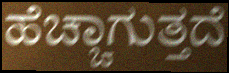
ಹೆಚ್ಚಾಗುತ್ತದೆ